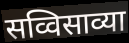
सव्विसाव्या